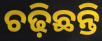
ଚଢ଼ିଛନ୍ତି